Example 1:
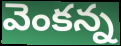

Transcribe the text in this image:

వెంకన్న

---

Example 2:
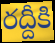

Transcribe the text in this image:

రద్దీకి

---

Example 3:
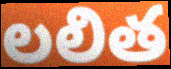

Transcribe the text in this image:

లలిత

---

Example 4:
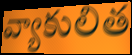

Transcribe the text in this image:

వ్యాకులిత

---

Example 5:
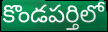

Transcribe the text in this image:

కొండపర్తిలో